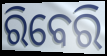
ରିବେରି